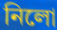
নিলো